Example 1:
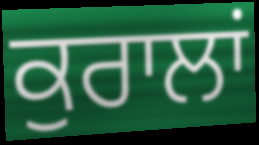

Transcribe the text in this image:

ਕੁਰਾਲਾਂ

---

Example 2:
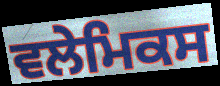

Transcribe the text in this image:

ਵਲੇਮਿਕਸ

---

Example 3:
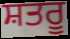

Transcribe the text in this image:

ਸ਼ਤਰੂ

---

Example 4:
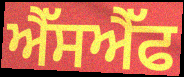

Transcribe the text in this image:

ਐੱਸਐੱਫ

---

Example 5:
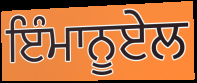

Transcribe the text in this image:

ਇੰਮਾਨੂਏਲ